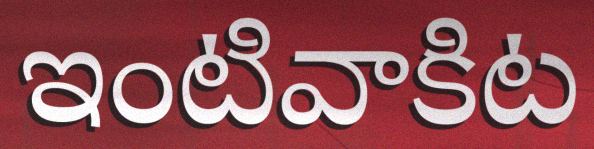
ఇంటివాకిట